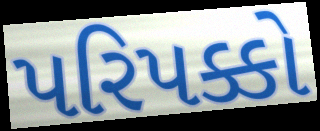
પરિપક્કો